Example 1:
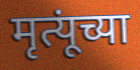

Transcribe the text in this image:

मृत्यूंच्या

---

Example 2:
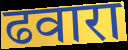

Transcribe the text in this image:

ढवारा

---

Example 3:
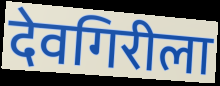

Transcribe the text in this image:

देवगिरीला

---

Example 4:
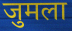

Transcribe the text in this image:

जुमला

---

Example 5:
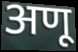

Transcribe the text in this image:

अणू